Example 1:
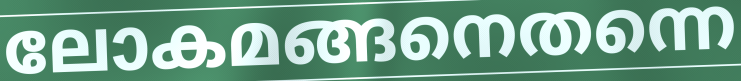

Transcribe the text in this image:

ലോകമങ്ങനെതന്നെ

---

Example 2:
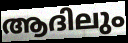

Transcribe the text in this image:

ആദിലും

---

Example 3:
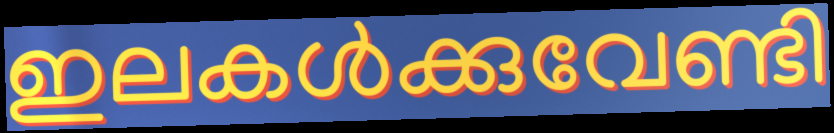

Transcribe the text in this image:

ഇലകൾക്കുവേണ്ടി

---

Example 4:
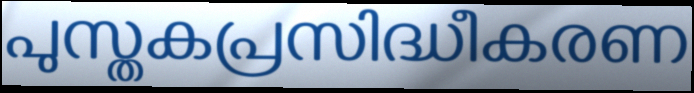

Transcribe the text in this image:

പുസ്തകപ്രസിദ്ധീകരണ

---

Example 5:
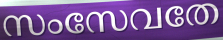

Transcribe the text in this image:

സംസേവതേ